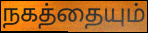
நகத்தையும்